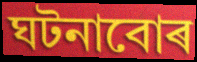
ঘটনাবোৰ